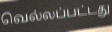
வெல்லப்பட்டது